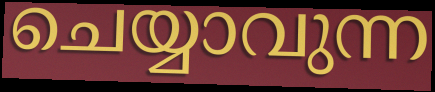
ചെയ്യാവുന്ന